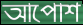
আপোশ